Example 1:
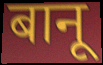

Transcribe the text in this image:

बानू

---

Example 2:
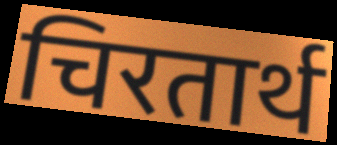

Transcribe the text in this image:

चिरतार्थ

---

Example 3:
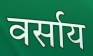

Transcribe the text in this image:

वर्साय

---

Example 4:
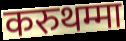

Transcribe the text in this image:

करुथम्मा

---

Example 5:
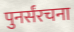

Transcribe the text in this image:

पुनर्संरचना